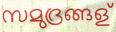
സമുദ്രങ്ങള്